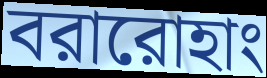
বরারোহাং